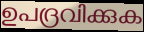
ഉപദ്രവിക്കുക